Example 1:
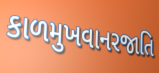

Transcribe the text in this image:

કાળમુખવાનરજાતિ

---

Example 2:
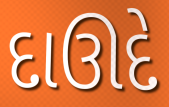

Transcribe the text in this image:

દાઊદે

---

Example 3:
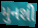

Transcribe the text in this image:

મુનશી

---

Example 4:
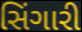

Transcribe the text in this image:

સિંગારી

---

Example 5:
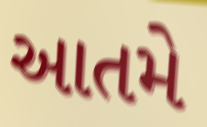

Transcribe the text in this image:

આતમે